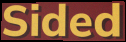
Sided